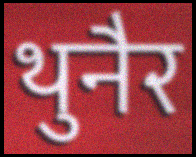
थुनैर